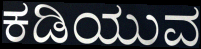
ಕಡಿಯುವ